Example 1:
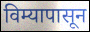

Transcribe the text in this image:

विम्यापासून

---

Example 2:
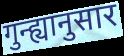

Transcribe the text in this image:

गुन्ह्यानुसार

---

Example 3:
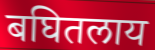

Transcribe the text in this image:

बघितलाय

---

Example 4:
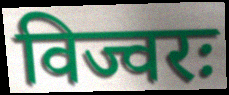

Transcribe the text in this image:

विज्वरः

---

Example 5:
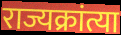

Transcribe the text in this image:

राज्यक्रांत्या